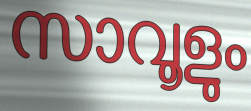
സാവൂളും